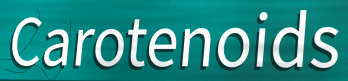
Carotenoids